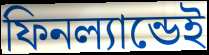
ফিনল্যান্ডেই